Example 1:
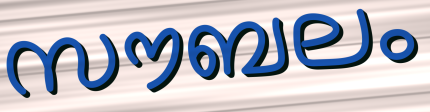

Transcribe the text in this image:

സൗബലം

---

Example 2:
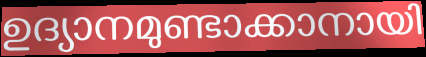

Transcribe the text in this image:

ഉദ്യാനമുണ്ടാക്കാനായി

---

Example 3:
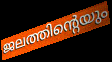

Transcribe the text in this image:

ജലത്തിന്റെയും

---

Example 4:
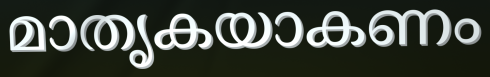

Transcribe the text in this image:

മാതൃകയാകണം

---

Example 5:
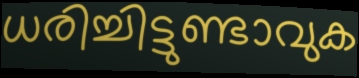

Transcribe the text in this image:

ധരിച്ചിട്ടുണ്ടാവുക